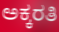
ಅಕ್ಕರತಿ